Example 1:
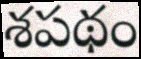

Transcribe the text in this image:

శపథం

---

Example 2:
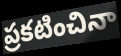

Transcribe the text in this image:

ప్రకటించినా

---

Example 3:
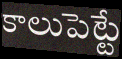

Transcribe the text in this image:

కాలుపెట్టే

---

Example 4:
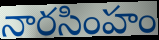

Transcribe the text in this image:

నారసింహం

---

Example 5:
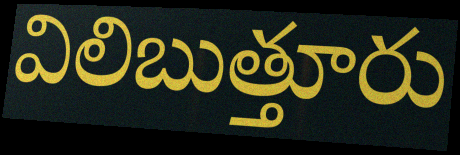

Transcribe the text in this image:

విలిబుత్తూరు